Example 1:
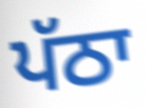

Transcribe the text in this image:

ਪੱਠਾ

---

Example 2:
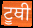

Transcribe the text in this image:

ਟੂਥੀ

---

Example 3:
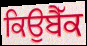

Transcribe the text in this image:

ਕਿਉਬੈੱਕ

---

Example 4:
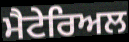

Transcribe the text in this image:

ਮੈਟੇਰਿਅਲ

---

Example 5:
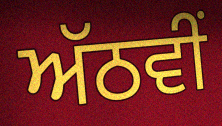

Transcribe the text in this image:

ਅੱਠਵੀੰ